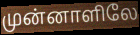
முன்னாளிலே